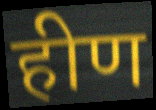
हीण